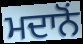
ਮਦਾਨੋਂ